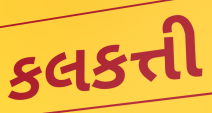
કલકત્તી